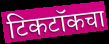
टिकटॉकचा